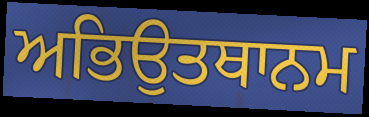
ਅਭਿਉਤਥਾਨਮ